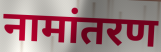
नामांतरण